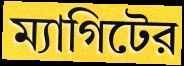
ম্যাগিটের